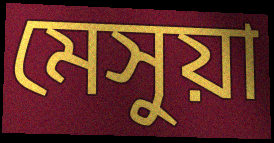
মেসুয়া